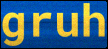
gruh